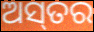
ଅସ୍‌ତର